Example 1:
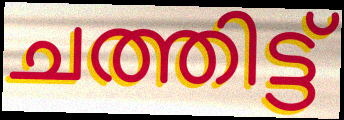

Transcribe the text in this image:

ചത്തിട്ട്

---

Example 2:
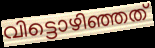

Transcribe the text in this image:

വിട്ടൊഴിഞ്ഞത്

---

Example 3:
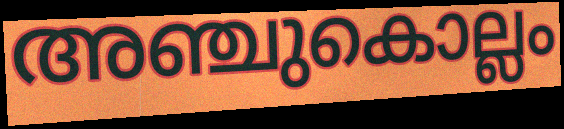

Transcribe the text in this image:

അഞ്ചുകൊല്ലം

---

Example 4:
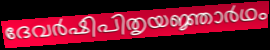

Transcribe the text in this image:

ദേവർഷിപിതൃയജ്ഞാർഥം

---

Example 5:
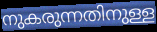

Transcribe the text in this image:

നുകരുന്നതിനുള്ള